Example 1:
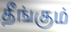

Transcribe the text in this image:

தீங்கும்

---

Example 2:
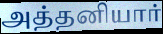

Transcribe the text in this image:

அத்தனியார்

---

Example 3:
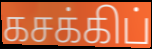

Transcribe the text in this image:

கசக்கிப்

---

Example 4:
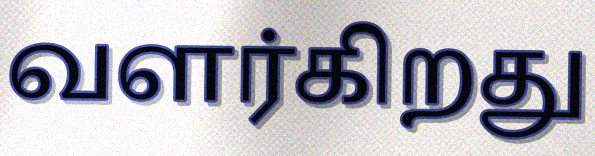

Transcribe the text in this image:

வளர்கிறது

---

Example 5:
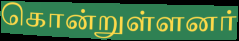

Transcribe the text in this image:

கொன்றுள்ளனர்